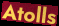
Atolls